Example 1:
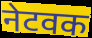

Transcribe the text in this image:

नेटवक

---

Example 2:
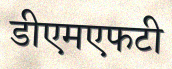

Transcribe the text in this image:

डीएमएफटी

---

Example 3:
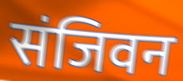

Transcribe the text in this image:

संजिवन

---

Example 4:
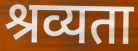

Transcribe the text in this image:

श्रव्यता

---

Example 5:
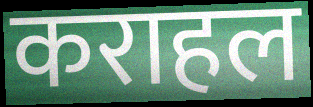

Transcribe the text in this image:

कराहल